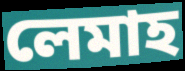
লেমাহ